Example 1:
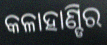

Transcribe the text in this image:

କଳାହାଣ୍ଡିର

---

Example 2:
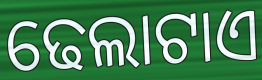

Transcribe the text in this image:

ଢେଲାଟାଏ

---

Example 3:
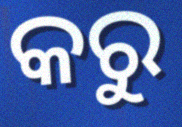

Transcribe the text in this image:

କରୁ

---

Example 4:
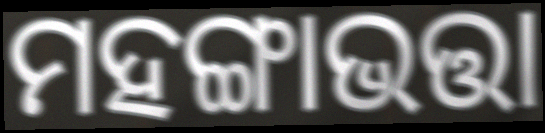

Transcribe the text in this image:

ମହଙ୍ଗାଭତ୍ତା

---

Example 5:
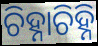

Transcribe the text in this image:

ଚିହ୍ନାଚିହ୍ନି